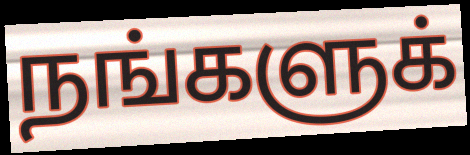
நங்களுக்